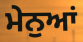
ਮੇਨੁਆਂ